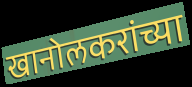
खानोलकरांच्या